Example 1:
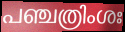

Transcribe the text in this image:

പഞ്ചത്രിംശഃ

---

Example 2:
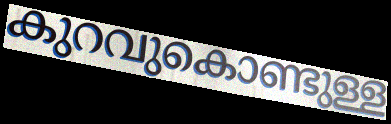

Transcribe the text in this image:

കുറവുകൊണ്ടുള്ള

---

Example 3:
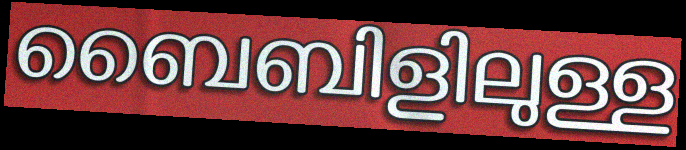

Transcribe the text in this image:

ബൈബിളിലുള്ള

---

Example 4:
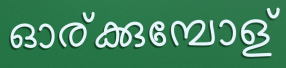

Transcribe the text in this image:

ഓര്ക്കുമ്പോള്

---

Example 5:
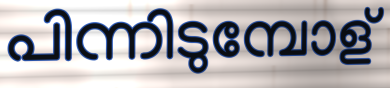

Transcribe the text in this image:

പിന്നിടുമ്പോള്